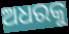
ଅଧରକୁ